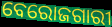
ବେରୋଜଗାରୀ